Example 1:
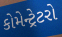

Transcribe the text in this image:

કોમેન્ટ્રેટરો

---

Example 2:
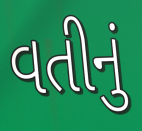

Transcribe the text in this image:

વતીનું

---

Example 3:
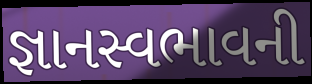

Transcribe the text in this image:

જ્ઞાનસ્વભાવની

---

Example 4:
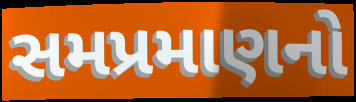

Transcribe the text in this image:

સમપ્રમાણનો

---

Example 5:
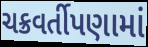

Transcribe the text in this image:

ચક્રવર્તીપણામાં